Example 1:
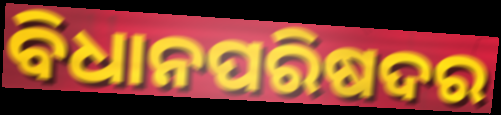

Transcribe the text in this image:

ବିଧାନପରିଷଦର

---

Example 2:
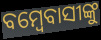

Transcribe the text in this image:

ବମ୍ବେବାସୀଙ୍କୁ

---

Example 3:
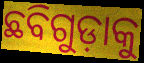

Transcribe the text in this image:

ଛବିଗୁଡ଼ାକୁ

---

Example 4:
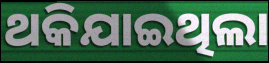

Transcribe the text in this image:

ଥକିଯାଇଥିଲା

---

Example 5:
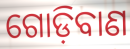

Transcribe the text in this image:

ଗୋଡ଼ିବାଣ